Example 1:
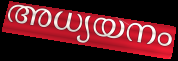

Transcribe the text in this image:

അധ്യയനം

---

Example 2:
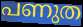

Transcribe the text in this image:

പണുത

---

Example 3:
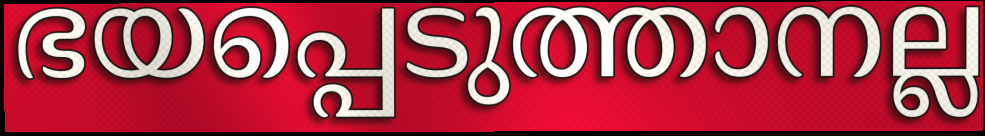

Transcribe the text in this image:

ഭയപ്പെടുത്താനല്ല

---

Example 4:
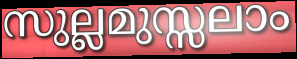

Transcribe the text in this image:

സുല്ലമുസ്സലാം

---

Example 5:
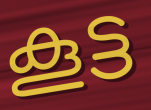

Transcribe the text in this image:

കൂട്ട